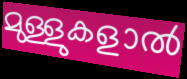
മുള്ളുകളാൽ